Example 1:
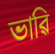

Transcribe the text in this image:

ভাৱি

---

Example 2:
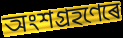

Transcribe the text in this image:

অংশগ্ৰহণেৰে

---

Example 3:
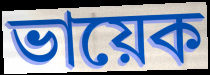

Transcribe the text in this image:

ভায়েক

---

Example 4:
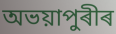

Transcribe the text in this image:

অভয়াপুৰীৰ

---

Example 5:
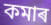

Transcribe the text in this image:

কমাৰ